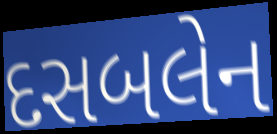
દસબલેન